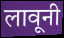
लावूनी